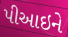
પીઆઇને